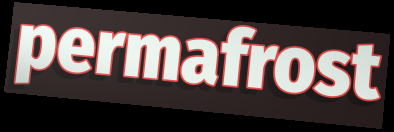
permafrost